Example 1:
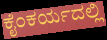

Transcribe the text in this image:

ಕೈಂಕರ್ಯದಲ್ಲಿ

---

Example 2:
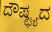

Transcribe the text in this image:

ದೌಷ್ಟ್ಯದ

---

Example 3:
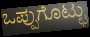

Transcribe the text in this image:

ಒಪ್ಪುಗೊಟ್ಟು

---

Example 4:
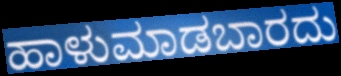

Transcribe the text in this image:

ಹಾಳುಮಾಡಬಾರದು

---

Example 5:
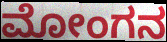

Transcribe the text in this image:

ಮೋಂಗನ